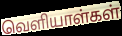
வெளியாள்கள்